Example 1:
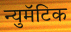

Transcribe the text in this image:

न्युमॅटिक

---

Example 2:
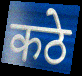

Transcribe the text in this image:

कठे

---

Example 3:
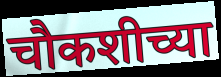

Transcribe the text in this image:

चौकशीच्या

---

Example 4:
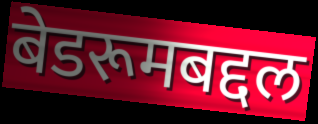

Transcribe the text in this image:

बेडरूमबद्दल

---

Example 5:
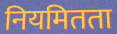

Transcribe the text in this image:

नियमितता